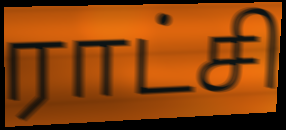
ராட்சி